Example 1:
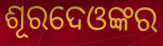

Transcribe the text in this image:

ଶୂରଦେଓଙ୍କର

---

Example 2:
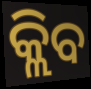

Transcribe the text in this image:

କ୍ଲିବ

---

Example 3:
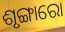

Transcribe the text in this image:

ଶୃଙ୍ଗାରୋ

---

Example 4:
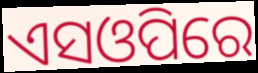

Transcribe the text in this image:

ଏସଓପିରେ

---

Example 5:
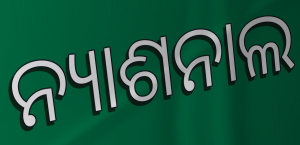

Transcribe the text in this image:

ନ୍ୟାଶନାଲ